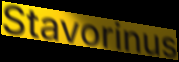
Stavorinus